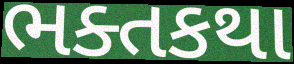
ભક્તકથા